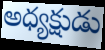
అధ్యక్షుడు